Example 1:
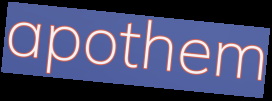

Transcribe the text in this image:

apothem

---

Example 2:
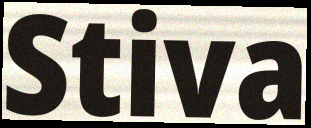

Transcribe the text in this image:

Stiva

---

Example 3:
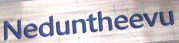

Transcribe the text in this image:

Neduntheevu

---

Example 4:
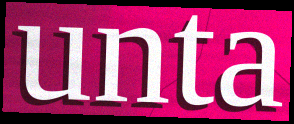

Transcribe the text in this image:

unta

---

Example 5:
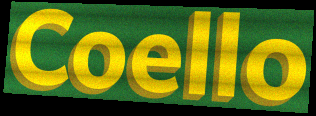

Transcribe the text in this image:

Coello